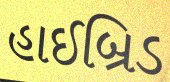
હાઈબ્રિડ